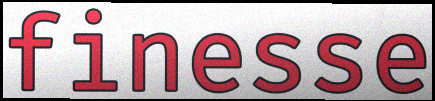
finesse